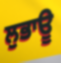
ਲੁਭਾਊ